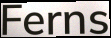
Ferns